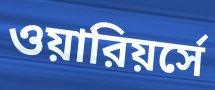
ওয়ারিয়র্সে